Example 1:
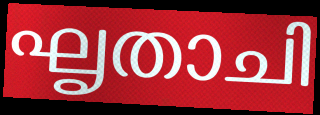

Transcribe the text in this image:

ഘൃതാചി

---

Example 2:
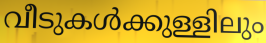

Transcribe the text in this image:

വീടുകൾക്കുള്ളിലും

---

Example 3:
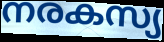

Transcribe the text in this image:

നരകസ്യ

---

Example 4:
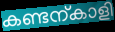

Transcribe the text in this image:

കണ്ടന്കാളി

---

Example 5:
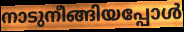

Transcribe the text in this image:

നാടുനീങ്ങിയപ്പോൾ